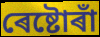
ৰেষ্টোৰাঁ